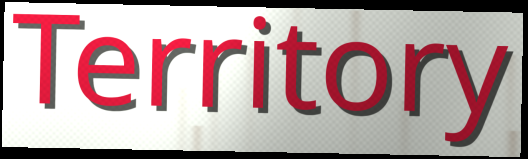
Territory